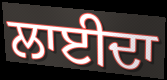
ਲਾਈਦਾ